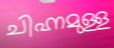
ചിഹ്നമുള്ള